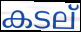
കടല്